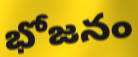
భోజనం